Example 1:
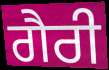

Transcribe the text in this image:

ਗੈਰੀ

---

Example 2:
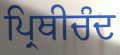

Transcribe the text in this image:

ਪ੍ਰਿਥੀਚੰਦ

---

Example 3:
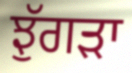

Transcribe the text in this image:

ਝੁੱਗੜਾ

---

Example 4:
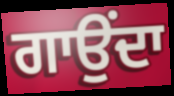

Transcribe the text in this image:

ਗਾਉਂਦਾ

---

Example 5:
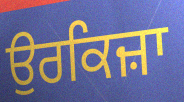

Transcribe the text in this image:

ਉਰਕਿਜ਼ਾ